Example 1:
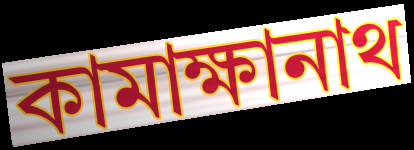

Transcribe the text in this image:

কামাক্ষানাথ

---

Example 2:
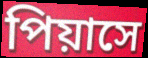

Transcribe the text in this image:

পিয়াসে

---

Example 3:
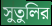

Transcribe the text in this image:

সুতুলির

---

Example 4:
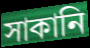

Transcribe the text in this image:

সাকানি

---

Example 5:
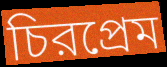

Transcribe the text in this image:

চিরপ্রেম